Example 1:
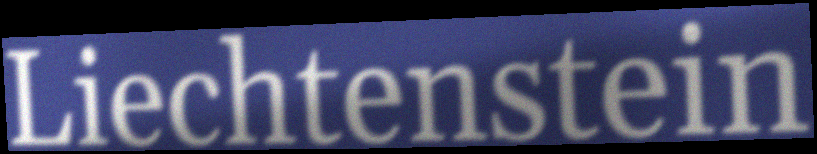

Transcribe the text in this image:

Liechtenstein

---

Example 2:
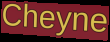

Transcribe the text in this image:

Cheyne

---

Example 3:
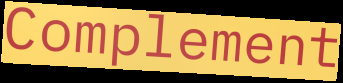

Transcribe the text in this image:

Complement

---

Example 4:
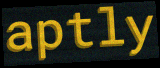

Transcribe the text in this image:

aptly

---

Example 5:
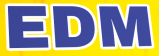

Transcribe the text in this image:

EDM